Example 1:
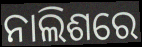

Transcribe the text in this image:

ନାଲିଶରେ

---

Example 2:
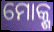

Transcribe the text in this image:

ମୋକ୍ଶ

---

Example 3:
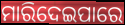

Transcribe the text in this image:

ମାରିଦେଇପାରେ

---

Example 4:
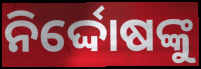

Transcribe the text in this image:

ନିର୍ଦ୍ଦୋଷଙ୍କୁ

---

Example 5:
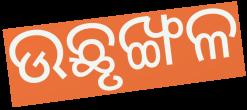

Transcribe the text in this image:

ଉଛୃଙ୍ଖଳ